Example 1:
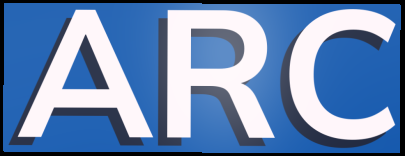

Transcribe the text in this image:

ARC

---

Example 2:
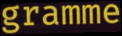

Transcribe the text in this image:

gramme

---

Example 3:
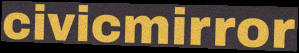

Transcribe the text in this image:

civicmirror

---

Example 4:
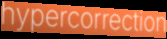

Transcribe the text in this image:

hypercorrection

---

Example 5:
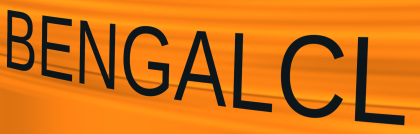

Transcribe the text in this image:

BENGALCL